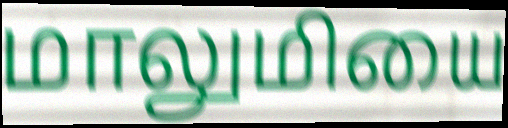
மாலுமியை